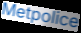
Metpolice